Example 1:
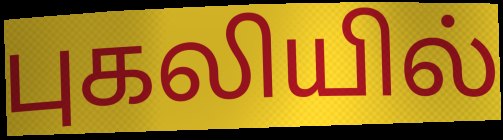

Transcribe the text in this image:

புகலியில்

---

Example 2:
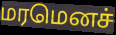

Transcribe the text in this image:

மரமெனச்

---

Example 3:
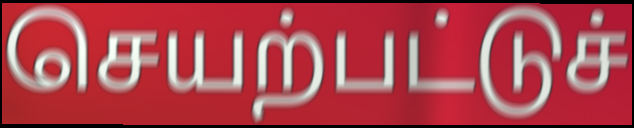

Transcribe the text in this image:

செயற்பட்டுச்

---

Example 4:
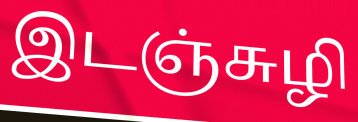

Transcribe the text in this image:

இடஞ்சுழி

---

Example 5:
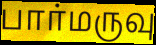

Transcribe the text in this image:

பார்மருவு